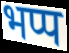
भप्प